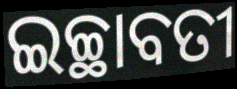
ଇଚ୍ଛାବତୀ